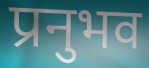
प्रनुभव